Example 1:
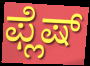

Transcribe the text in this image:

ಫ್ಲೆಷ್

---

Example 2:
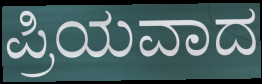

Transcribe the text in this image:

ಪ್ರಿಯವಾದ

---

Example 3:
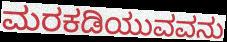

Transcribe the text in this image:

ಮರಕಡಿಯುವವನು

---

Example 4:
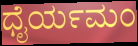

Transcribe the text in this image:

ಧೈರ್ಯಮಂ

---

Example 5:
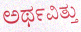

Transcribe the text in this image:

ಅರ್ಥವಿತ್ತು